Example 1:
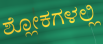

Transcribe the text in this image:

ಶ್ಲೋಕಗಳಲ್ಲಿ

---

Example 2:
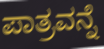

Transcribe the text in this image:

ಪಾತ್ರವನ್ನೆ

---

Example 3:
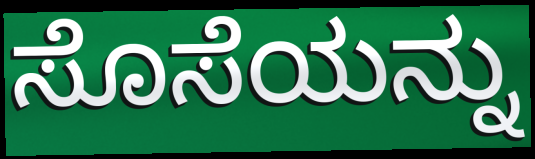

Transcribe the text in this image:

ಸೊಸೆಯನ್ನು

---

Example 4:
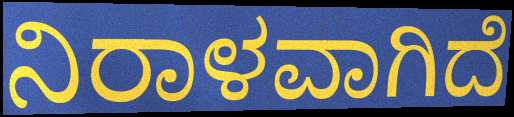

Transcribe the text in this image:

ನಿರಾಳವಾಗಿದೆ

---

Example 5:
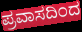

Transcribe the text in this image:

ಪ್ರವಾಸದಿಂದ